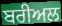
ਬਰੀਅਲ